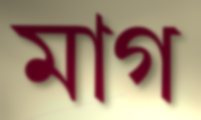
মাগ